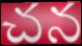
చన